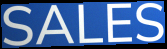
SALES